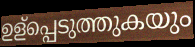
ഉള്പ്പെടുത്തുകയും